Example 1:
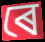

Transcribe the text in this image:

ৰে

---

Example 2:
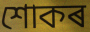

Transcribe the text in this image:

শোকৰ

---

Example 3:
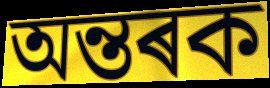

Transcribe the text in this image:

অন্তৰক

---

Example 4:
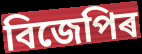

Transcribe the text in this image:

বিজেপিৰ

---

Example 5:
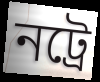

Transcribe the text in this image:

নট্ৰে